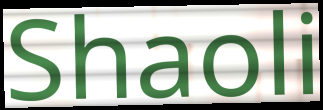
Shaoli